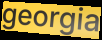
georgia